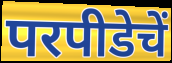
परपीडेचें